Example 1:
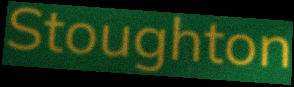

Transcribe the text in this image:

Stoughton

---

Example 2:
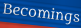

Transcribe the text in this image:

Becomings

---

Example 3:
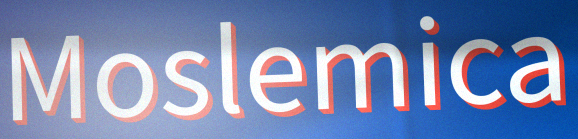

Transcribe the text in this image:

Moslemica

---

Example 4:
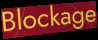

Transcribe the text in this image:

Blockage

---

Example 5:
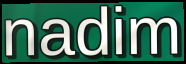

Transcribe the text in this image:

nadim